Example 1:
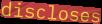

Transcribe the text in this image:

discloses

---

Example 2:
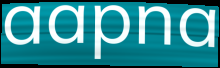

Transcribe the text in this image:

aapna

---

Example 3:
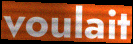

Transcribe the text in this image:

voulait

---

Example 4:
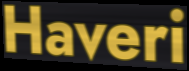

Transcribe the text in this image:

Haveri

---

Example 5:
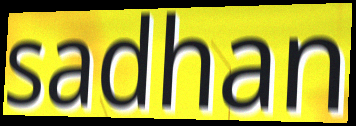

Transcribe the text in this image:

sadhan